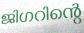
ജിഗറിന്റെ